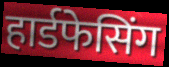
हार्डफेसिंग